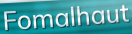
Fomalhaut